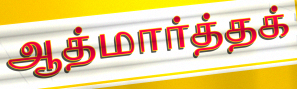
ஆத்மார்த்தக்